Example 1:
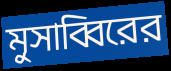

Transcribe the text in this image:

মুসাব্বিরের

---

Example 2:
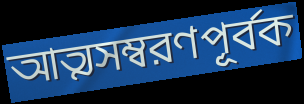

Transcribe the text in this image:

আত্মসম্বরণপূর্বক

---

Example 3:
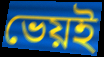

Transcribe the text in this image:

ভেয়ই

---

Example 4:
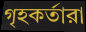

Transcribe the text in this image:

গৃহকর্তারা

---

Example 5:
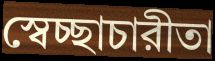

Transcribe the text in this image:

স্বেচ্ছাচারীতা